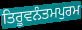
ਤਿਰੂਵਨੰਤਮਪੁਰਮ